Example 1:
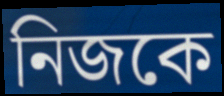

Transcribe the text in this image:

নিজকে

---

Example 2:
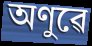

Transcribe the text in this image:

অণুৱে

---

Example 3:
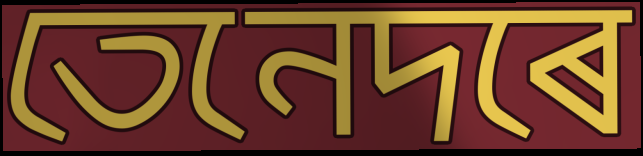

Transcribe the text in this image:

তেনেদৰে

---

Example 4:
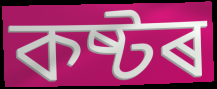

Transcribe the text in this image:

কষ্টৰ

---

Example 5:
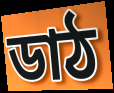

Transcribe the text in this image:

ডাঠ